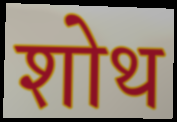
शोथ